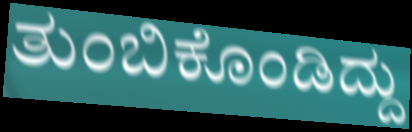
ತುಂಬಿಕೊಂಡಿದ್ದು